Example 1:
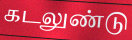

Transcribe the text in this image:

கடலுண்டு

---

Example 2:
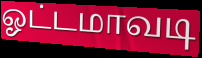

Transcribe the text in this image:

ஓட்டமாவடி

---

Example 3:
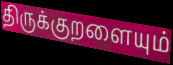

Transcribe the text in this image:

திருக்குறளையும்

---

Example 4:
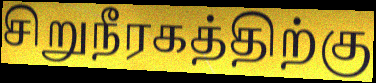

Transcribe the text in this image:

சிறுநீரகத்திற்கு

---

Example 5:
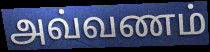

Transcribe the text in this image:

அவ்வணம்